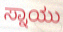
ಸ್ನಾಯು